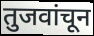
तुजवांचून